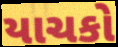
યાચકો